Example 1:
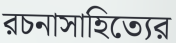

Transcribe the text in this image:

রচনাসাহিত্যের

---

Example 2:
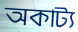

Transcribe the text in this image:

অকাট্য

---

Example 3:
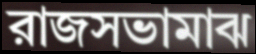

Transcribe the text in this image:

রাজসভামাঝ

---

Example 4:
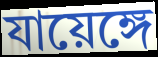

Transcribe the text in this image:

যায়েঙ্গে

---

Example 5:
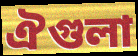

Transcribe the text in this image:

ঐগুলা